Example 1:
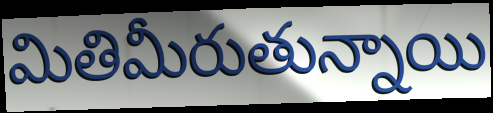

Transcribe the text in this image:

మితిమీరుతున్నాయి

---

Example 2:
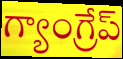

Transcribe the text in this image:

గ్యాంగ్రేప్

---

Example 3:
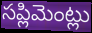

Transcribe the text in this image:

సప్లిమెంట్లు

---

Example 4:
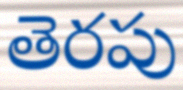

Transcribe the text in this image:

తెరపు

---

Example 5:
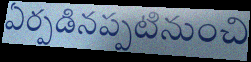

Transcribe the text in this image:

ఏర్పడినప్పటినుంచి